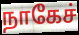
நாகேச்